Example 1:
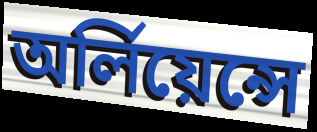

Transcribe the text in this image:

অর্লিয়েন্সে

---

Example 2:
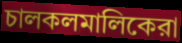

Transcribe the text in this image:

চালকলমালিকেরা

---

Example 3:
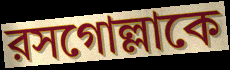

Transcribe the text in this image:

রসগোল্লাকে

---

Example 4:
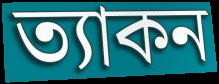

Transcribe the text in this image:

ত্যাকন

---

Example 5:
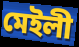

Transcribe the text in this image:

মেইলী